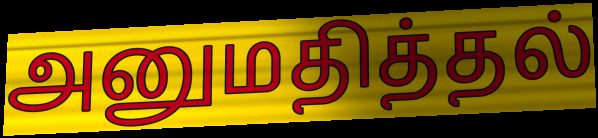
அனுமதித்தல்